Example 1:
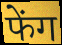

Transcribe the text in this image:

फेंग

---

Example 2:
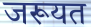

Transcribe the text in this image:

जरूयत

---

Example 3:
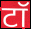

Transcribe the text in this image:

टॉ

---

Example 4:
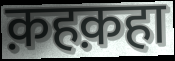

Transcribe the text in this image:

क़हक़हा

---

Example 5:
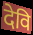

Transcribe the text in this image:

देवि